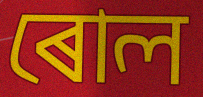
ৰোল